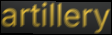
artillery